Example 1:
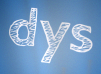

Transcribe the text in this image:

dys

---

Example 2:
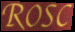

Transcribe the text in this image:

ROSC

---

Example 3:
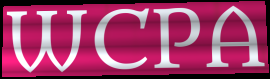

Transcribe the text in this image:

WCPA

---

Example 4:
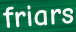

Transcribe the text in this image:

friars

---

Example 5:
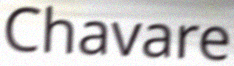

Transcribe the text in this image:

Chavare